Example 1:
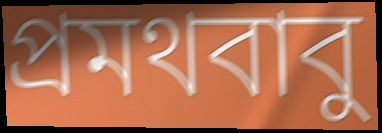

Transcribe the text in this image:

প্রমথবাবু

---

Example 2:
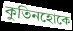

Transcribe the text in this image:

কুতিনহোকে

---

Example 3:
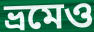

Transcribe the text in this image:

ভ্রমেও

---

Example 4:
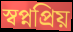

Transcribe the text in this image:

স্বপ্নপ্রিয়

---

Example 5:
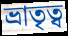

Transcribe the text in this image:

ভ্রাতৃত্ব